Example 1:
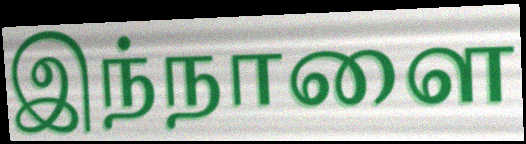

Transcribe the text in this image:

இந்நாளை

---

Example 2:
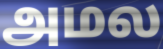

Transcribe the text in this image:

அமல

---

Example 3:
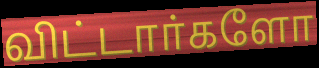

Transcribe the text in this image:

விட்டார்களோ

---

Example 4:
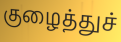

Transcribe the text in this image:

குழைத்துச்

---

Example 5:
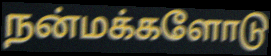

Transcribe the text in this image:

நன்மக்களோடு